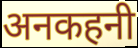
अनकहनी